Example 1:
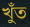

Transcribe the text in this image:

খুঁত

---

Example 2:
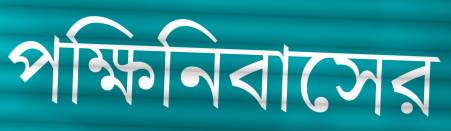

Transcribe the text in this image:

পক্ষিনিবাসের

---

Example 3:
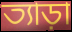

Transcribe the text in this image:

ত্যাড়া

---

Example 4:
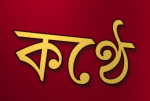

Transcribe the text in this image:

কণ্ঠে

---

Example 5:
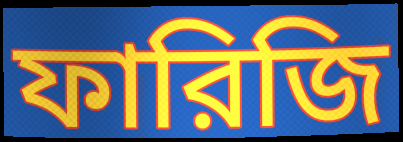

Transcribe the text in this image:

ফারিজি